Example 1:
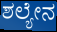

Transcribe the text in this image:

ಶಲ್ಯೇನ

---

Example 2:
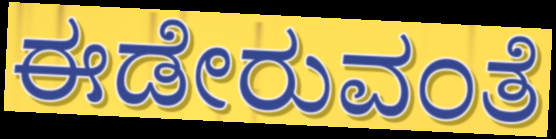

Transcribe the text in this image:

ಈಡೇರುವಂತೆ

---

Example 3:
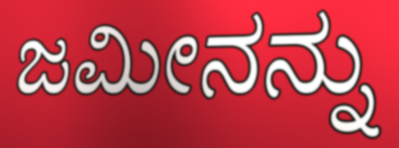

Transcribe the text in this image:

ಜಮೀನನ್ನು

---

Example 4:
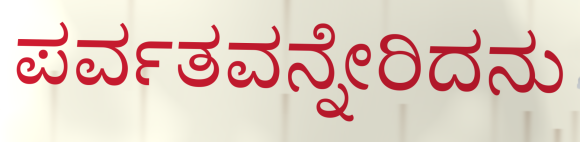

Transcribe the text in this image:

ಪರ್ವತವನ್ನೇರಿದನು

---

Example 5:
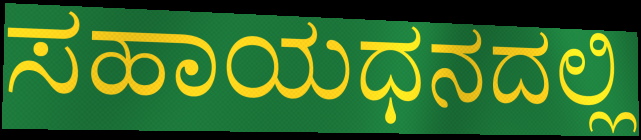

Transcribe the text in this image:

ಸಹಾಯಧನದಲ್ಲಿ